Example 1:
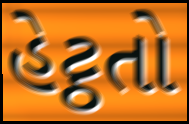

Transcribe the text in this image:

હેટ્ઠતો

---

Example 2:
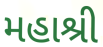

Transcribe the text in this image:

મહાશ્રી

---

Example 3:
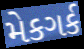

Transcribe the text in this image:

મેકગર્ક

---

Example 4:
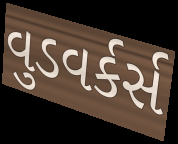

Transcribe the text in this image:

વુડવર્કર્સ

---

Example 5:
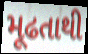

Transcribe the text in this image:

મૂઢતાથી